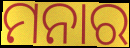
ମନାର